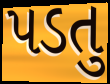
પડતુ